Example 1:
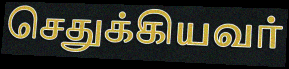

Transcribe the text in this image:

செதுக்கியவர்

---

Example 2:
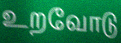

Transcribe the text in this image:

உறவோடு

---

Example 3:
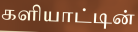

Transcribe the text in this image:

களியாட்டின்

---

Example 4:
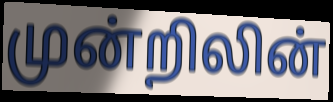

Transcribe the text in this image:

முன்றிலின்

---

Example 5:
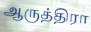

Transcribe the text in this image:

ஆருத்திரா